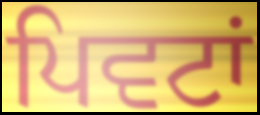
ਪਿਵਟਾਂ